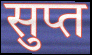
सुप्त